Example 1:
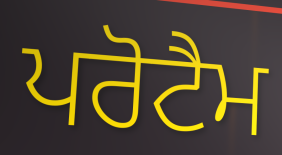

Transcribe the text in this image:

ਪਰੋਟੈਮ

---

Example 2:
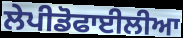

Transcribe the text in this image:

ਲੇਪੀਡੋਫਾਈਲੀਆ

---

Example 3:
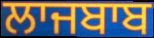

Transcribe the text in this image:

ਲਾਜਬਾਬ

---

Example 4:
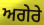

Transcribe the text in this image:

ਅਗੇਰੇ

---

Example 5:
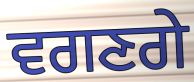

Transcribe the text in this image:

ਵਗਣਗੇ